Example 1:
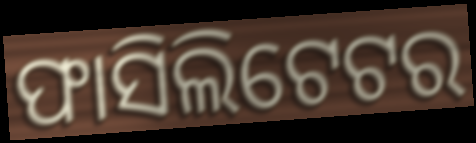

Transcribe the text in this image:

ଫାସିଲିଟେଟର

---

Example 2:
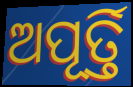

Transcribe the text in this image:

ଅପୂର୍ତ୍ତି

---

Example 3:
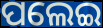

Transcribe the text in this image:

ପଲେଇ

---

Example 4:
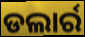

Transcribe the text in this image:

ଡଲାର୍ର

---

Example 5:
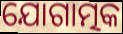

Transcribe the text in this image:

ଯୋଗାତ୍ମକ